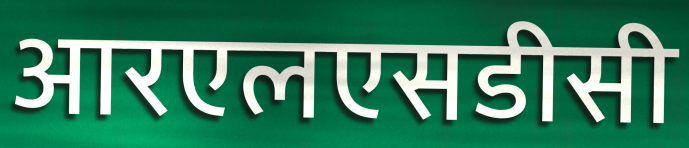
आरएलएसडीसी